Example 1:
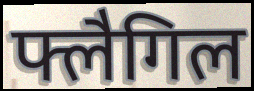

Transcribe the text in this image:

फ्लैगिल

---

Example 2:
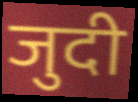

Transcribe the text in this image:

जुदी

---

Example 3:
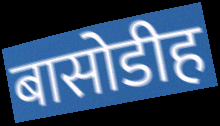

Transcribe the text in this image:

बासोडीह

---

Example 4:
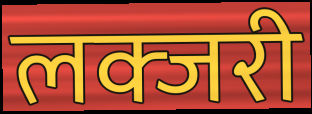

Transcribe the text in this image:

लक्‍जरी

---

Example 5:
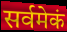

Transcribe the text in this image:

सर्वमेकं